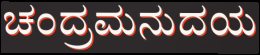
ಚಂದ್ರಮನುದಯ